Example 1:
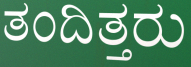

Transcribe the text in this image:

ತಂದಿತ್ತರು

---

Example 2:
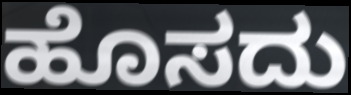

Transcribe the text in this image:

ಹೊಸದು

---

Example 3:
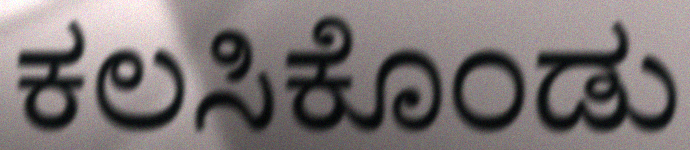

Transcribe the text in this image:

ಕಲಸಿಕೊಂಡು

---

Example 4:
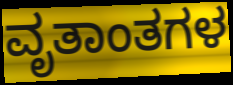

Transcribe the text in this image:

ವೃತಾಂತಗಳ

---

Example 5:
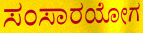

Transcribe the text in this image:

ಸಂಸಾರಯೋಗ